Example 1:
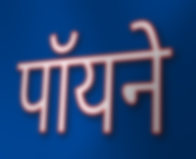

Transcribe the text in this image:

पॉयने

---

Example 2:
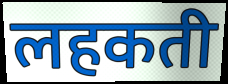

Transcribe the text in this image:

लहकती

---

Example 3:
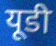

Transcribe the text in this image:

यूडी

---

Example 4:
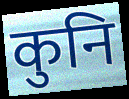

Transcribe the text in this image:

कुनि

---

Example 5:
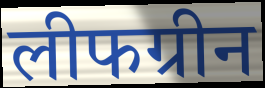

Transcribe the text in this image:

लीफग्रीन